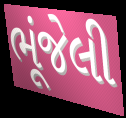
ભૂંજેલી